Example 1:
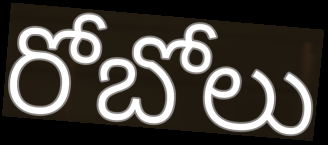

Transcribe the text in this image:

రోబోలు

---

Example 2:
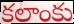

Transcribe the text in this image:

కలాంకు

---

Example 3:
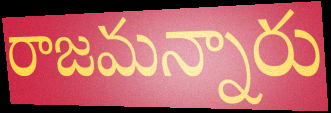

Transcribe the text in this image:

రాజమన్నారు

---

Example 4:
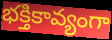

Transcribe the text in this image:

భక్తికావ్యంగా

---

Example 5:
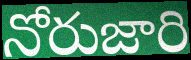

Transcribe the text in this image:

నోరుజారి